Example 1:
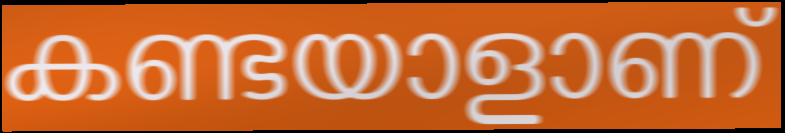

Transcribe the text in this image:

കണ്ടയാളാണ്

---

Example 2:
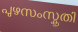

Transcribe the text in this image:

പുഴസംസ്കൃതി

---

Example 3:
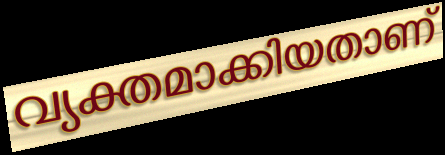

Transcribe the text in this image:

വ്യക്തമാക്കിയതാണ്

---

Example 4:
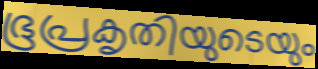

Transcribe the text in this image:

ഭൂപ്രകൃതിയുടെയും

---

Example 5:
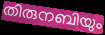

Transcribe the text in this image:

തിരുനബിയും